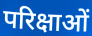
परिक्षाओं